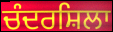
ਚੰਦਰਸ਼ਿਲਾ